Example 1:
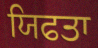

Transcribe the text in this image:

ਯਿਫਤਾ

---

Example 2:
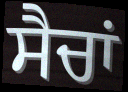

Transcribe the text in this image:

ਸੈਚਾਂ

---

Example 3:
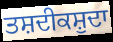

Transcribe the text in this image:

ਤਸ਼ਦੀਕਸ਼ੁਦਾ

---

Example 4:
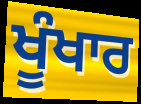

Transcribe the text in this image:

ਖੂੰਖਾਰ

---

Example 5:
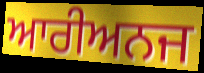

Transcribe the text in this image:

ਆਰੀਅਨਜ